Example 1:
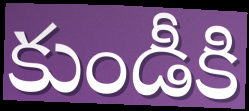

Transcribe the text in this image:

కుండీకి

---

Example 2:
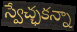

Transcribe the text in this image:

స్వేచ్ఛకన్నా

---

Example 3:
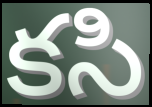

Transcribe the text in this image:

కసి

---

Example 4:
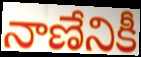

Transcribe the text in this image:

నాణేనికీ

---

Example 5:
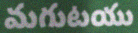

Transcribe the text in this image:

మగుటయు